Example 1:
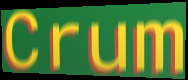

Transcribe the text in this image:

Crum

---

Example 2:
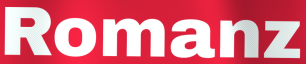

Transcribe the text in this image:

Romanz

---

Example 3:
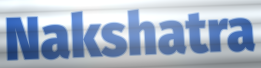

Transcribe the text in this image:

Nakshatra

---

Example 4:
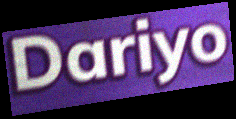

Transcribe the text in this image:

Dariyo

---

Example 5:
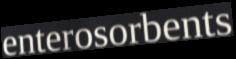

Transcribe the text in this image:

enterosorbents